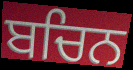
ਬਚਿਨ